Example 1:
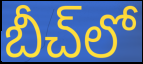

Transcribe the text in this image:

బీచ్‌లో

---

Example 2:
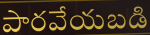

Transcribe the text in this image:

పారవేయబడి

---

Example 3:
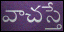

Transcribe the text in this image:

వాచస్తే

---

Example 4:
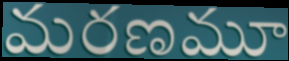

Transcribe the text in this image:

మరణమూ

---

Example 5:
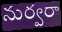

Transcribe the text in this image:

నుర్వరా